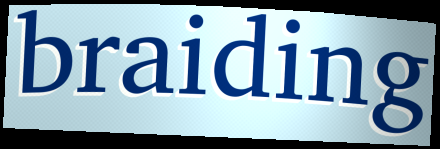
braiding